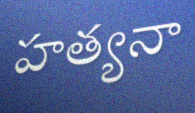
హత్యనా